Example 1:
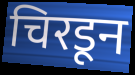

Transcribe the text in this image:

चिरडून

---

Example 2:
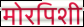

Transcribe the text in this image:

मोरपिशी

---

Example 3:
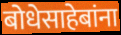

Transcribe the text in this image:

बोधेसाहेबांना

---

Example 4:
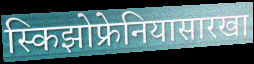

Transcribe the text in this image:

स्किझोफ्रेनियासारखा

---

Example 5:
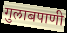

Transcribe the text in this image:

गुलाबपाणी